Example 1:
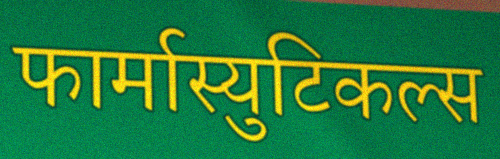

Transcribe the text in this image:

फार्मास्युटिकल्स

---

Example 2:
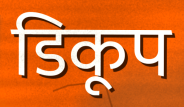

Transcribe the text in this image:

डिकूप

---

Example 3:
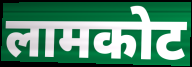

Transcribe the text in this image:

लामकोट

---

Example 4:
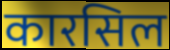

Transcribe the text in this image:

कारसिल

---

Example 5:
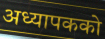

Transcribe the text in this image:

अध्यापकको